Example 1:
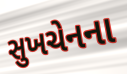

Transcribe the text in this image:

સુખચેનના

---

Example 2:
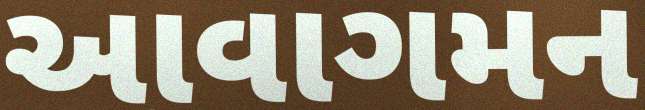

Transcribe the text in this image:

આવાગમન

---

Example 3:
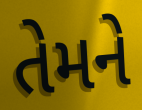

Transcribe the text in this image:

તેમને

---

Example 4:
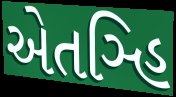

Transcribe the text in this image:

એતઞ્હિ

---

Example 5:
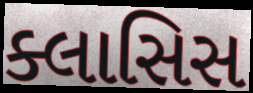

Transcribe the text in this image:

ક્લાસિસ